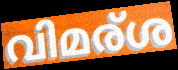
വിമര്ശ